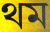
থম